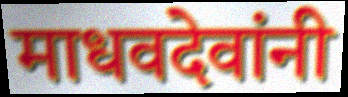
माधवदेवांनी